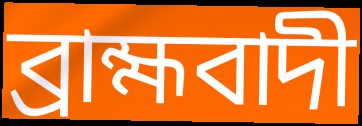
ব্ৰাহ্মবাদী